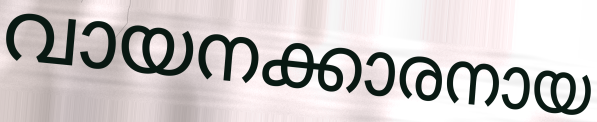
വായനക്കാരനായ